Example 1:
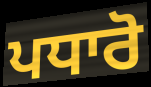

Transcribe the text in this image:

ਪਧਾਰੋ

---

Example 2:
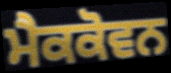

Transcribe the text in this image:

ਮੈਕਕੋਵਨ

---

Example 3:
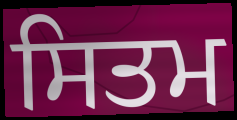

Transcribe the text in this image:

ਸਿਤਮ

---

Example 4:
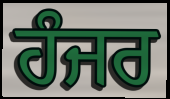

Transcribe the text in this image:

ਹੰਜਰ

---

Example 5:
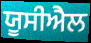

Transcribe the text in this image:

ਯੂਸੀਐਲ